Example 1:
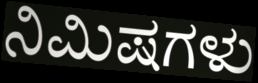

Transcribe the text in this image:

ನಿಮಿಷಗಳು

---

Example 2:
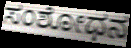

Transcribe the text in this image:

ಸಂಶೋಧನ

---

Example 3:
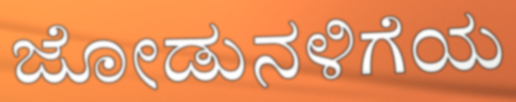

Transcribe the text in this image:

ಜೋಡುನಳಿಗೆಯ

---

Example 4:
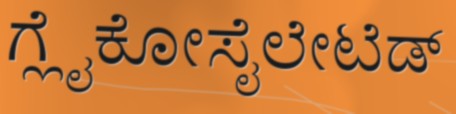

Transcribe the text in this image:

ಗ್ಲೈಕೋಸೈಲೇಟೆಡ್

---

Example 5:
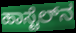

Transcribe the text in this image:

ಹಾಸ್ಟೆಲ್‌ನ